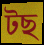
টছ